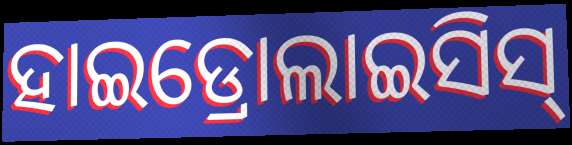
ହାଇଡ୍ରୋଲାଇସିସ୍